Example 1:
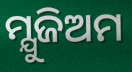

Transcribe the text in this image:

ମ୍ଯୁଜିଅମ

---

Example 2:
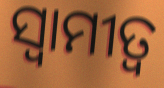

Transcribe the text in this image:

ସ୍ଵାମୀତ୍ବ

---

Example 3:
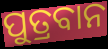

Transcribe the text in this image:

ପୁତ୍ରବାନ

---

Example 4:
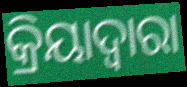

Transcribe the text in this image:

କ୍ରିୟାଦ୍ଵାରା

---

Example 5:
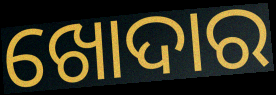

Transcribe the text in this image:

ଖୋଦାର